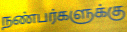
நண்பர்களுக்கு